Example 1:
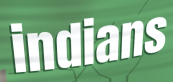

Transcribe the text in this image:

indians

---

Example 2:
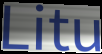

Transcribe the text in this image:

Litu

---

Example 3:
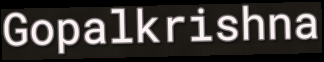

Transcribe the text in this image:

Gopalkrishna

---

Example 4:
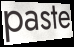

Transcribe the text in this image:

paste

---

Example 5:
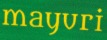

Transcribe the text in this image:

mayuri